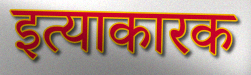
इत्याकारक